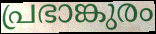
പ്രഭാങ്കുരം